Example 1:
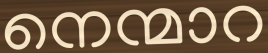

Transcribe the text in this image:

നെന്മാറ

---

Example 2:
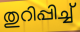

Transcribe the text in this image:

തുറിപ്പിച്ച്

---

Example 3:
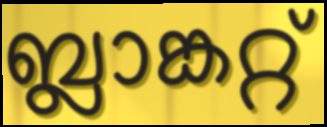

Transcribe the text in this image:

ബ്ലാങ്കറ്റ്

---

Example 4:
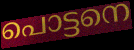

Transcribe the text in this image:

പൊട്ടനെ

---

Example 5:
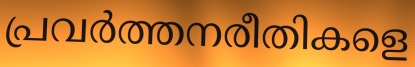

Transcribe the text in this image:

പ്രവർത്തനരീതികളെ